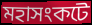
মহাসংকটে